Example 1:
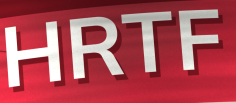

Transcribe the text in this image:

HRTF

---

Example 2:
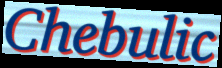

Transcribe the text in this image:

Chebulic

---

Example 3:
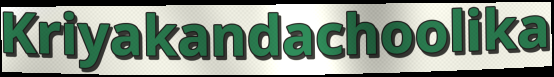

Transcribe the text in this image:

Kriyakandachoolika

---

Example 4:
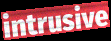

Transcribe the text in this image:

intrusive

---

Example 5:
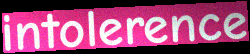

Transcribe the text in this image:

intolerence